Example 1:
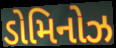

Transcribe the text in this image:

ડોમિનોઝ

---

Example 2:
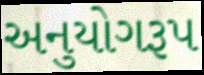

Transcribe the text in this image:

અનુયોગરૂપ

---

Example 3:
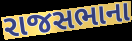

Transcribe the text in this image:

રાજસભાના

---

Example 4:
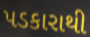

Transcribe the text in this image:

પડકારાથી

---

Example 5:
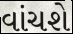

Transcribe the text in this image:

વાંચશે